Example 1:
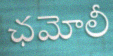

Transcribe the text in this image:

ఛమోలీ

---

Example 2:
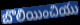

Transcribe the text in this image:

బొలియించియు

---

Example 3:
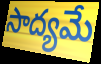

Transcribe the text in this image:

సాద్యమే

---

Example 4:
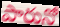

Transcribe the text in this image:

పారునో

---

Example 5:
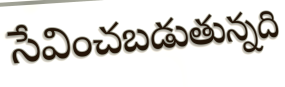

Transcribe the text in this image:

సేవించబడుతున్నది